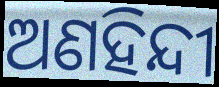
ଅଣହିନ୍ଦୀ